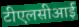
टीएलसीआई